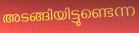
അടങ്ങിയിട്ടുണ്ടെന്ന